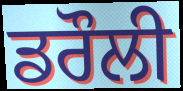
ਡਰੌਲੀ